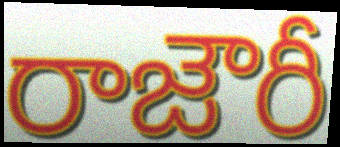
రాజౌరీ